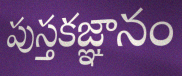
పుస్తకజ్ఞానం